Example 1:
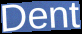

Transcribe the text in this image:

Dent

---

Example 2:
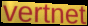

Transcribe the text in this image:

vertnet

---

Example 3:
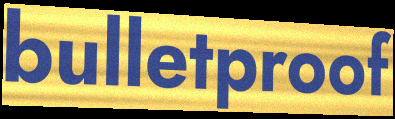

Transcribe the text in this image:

bulletproof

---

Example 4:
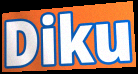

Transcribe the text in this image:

Diku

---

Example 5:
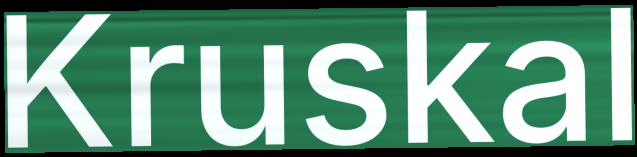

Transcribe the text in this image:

Kruskal